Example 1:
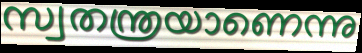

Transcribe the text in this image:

സ്വതന്ത്രയാണെന്നു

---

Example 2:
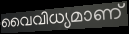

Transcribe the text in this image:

വൈവിധ്യമാണ്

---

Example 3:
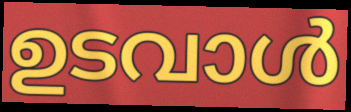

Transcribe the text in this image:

ഉടവാൾ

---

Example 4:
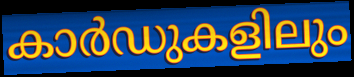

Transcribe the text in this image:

കാർഡുകളിലും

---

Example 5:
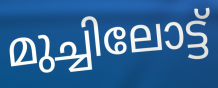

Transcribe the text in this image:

മുച്ചിലോട്ട്